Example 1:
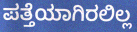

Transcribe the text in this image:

ಪತ್ತೆಯಾಗಿರಲಿಲ್ಲ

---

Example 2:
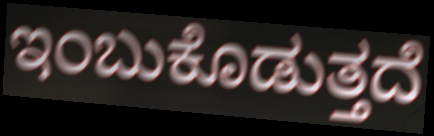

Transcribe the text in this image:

ಇಂಬುಕೊಡುತ್ತದೆ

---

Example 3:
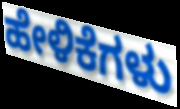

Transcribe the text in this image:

ಹೇಳಿಕೆಗಳು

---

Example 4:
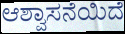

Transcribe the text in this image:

ಆಶ್ವಾಸನೆಯಿದೆ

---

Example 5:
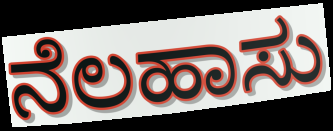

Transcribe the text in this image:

ನೆಲಹಾಸು